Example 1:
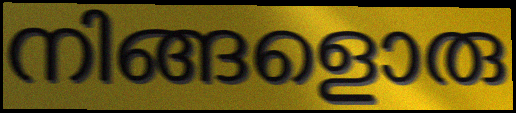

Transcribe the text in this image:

നിങ്ങളൊരു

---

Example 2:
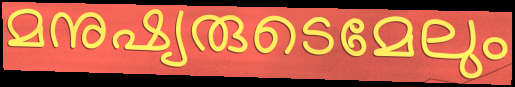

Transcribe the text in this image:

മനുഷ്യരുടെമേലും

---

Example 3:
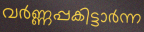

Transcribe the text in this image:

വർണ്ണപ്പകിട്ടാർന്ന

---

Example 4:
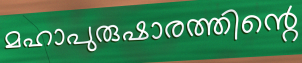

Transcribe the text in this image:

മഹാപുരുഷാരത്തിന്റെ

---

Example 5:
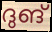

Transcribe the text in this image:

ദുങ്